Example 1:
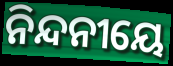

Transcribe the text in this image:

ନିନ୍ଦନୀୟେ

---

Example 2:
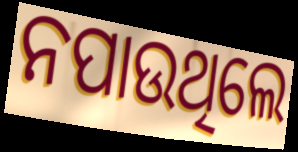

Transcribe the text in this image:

ନପାଉଥିଲେ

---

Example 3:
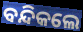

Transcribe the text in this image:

ବନ୍ଦିକଲେ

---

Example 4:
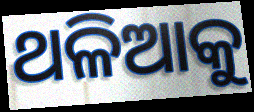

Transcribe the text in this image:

ଥଳିଆକୁ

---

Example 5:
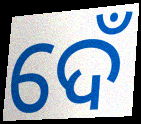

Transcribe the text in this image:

ଦେଁ